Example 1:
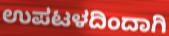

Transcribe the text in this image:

ಉಪಟಳದಿಂದಾಗಿ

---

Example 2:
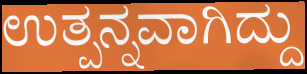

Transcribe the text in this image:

ಉತ್ಪನ್ನವಾಗಿದ್ದು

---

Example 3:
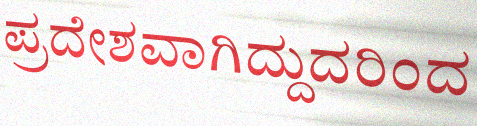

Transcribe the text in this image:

ಪ್ರದೇಶವಾಗಿದ್ದುದರಿಂದ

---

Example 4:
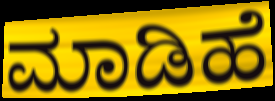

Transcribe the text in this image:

ಮಾಡಿಹೆ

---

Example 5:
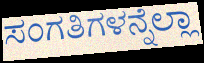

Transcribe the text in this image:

ಸಂಗತಿಗಳನ್ನೆಲ್ಲಾ